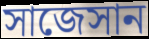
সাজেসান